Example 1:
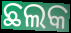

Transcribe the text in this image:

ଛଲକ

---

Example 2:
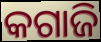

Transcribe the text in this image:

କଗାଜି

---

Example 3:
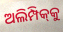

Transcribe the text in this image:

ଅଲିମ୍ପିକ୍‌କୁ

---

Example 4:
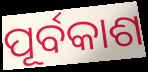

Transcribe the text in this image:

ପୂର୍ବକାଶ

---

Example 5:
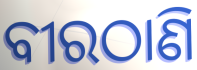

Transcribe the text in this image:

ବୀରଠାଣି